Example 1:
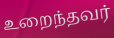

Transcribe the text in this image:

உறைந்தவர்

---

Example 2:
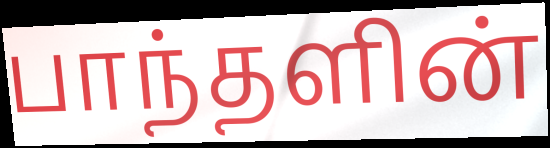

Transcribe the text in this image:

பாந்தளின்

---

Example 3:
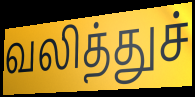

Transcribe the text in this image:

வலித்துச்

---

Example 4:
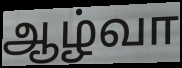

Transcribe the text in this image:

ஆழ்வா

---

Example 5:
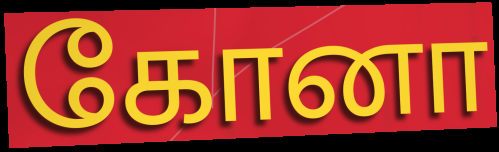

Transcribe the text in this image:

கோனா